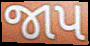
જાપ